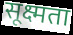
सूक्ष्मता